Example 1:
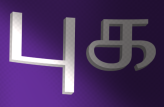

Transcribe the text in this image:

புக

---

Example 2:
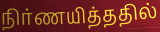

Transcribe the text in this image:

நிர்ணயித்ததில்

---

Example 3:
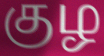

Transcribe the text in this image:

குழ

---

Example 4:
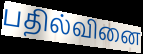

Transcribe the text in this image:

பதில்வினை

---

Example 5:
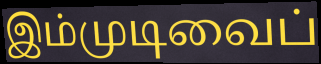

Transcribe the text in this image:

இம்முடிவைப்